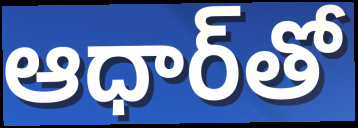
ఆధార్‌తో